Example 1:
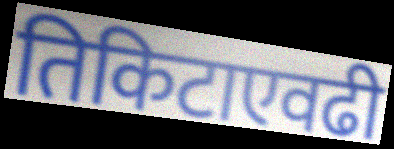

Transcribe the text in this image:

तिकिटाएवढी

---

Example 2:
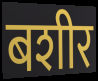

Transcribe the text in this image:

बशीर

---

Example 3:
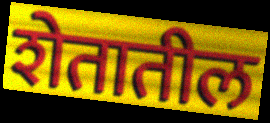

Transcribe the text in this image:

शेतातील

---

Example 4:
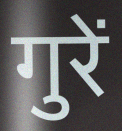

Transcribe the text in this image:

गुरें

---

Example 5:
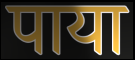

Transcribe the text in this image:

पाया